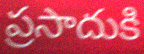
ప్రసాదుకి